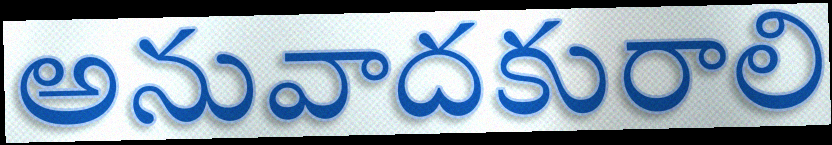
అనువాదకురాలి